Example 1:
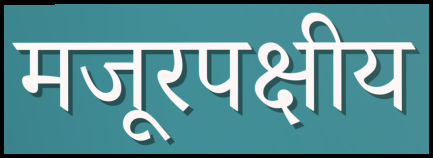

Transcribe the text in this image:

मजूरपक्षीय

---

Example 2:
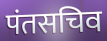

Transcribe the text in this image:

पंतसचिव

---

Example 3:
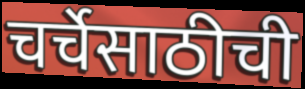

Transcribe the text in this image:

चर्चेसाठीची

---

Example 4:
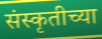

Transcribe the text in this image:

संस्कृतीच्या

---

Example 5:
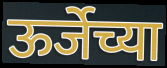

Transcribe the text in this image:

ऊर्जेच्या